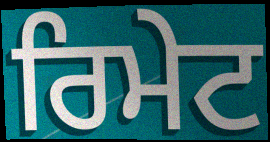
ਰਿਮੇਟ